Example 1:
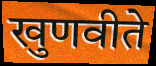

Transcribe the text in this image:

खुणवीते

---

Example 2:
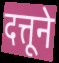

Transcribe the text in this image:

दत्तूने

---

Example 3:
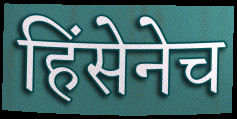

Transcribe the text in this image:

हिंसेनेच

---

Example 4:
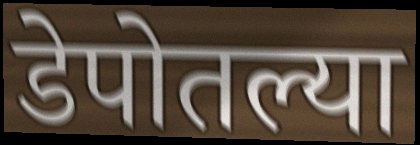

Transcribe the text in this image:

डेपोतल्या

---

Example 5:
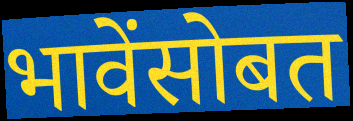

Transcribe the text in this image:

भावेंसोबत